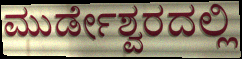
ಮುರ್ಡೇಶ್ವರದಲ್ಲಿ